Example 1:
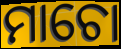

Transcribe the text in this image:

ମାଚୋ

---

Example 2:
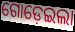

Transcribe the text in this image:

ଗୋଡ଼େଇଲା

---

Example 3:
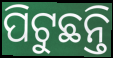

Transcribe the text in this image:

ପିଟୁଛନ୍ତି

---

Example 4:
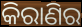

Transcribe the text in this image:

କିରାଣିର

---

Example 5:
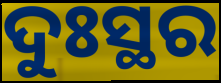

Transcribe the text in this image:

ଦୁଃସ୍ଥର